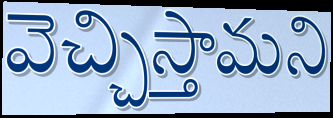
వెచ్చిస్తామని